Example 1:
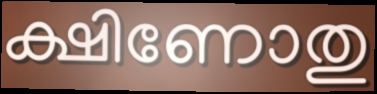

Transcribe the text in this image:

ക്ഷിണോതു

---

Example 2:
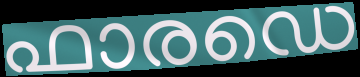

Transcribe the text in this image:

ഫാരഡെ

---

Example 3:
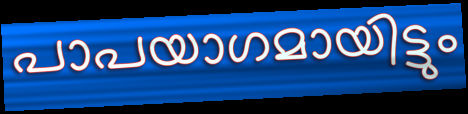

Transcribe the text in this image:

പാപയാഗമായിട്ടും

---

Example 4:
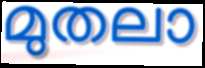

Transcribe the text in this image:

മുതലാ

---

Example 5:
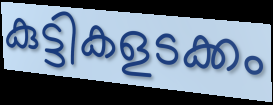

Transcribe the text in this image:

കുട്ടികളടക്കം